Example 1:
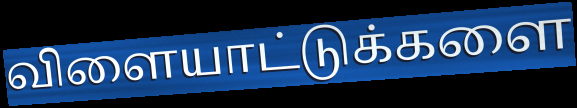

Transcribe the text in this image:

விளையாட்டுக்களை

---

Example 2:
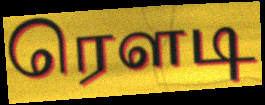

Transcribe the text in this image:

ரௌடி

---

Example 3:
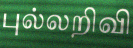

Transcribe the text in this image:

புல்லறிவி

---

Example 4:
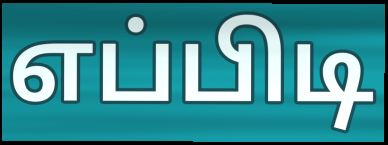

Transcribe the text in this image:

எப்பிடி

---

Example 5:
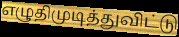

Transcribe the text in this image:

எழுதிமுடித்துவிட்டு